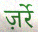
ज़र्रे